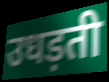
उधड़ती